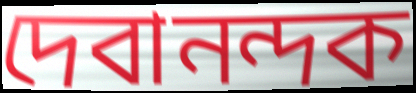
দেবানন্দক